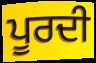
ਪੂਰਦੀ